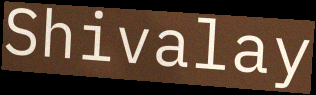
Shivalay